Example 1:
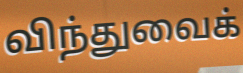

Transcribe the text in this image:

விந்துவைக்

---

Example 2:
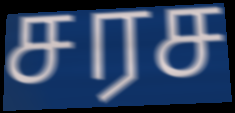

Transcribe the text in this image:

சரச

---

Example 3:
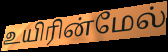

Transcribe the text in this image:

உயிரின்மேல்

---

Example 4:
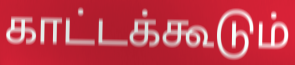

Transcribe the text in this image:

காட்டக்கூடும்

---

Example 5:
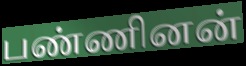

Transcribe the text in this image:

பண்ணினன்